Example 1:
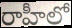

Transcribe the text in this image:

రాహీలో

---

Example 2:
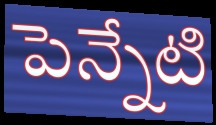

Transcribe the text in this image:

పెన్నేటి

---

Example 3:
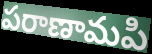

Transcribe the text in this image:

పరాణామపి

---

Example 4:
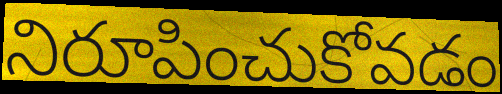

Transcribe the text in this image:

నిరూపించుకోవడం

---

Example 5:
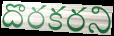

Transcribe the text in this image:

దొరకరని